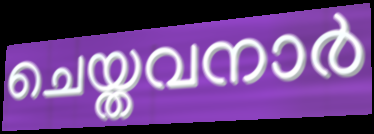
ചെയ്തവനാർ